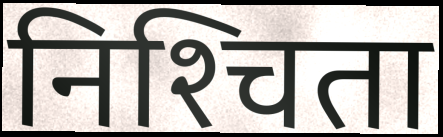
निश्चिता